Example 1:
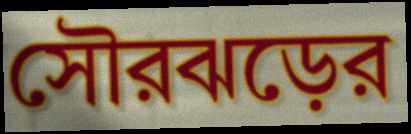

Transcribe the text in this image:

সৌরঝড়ের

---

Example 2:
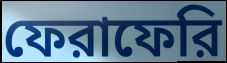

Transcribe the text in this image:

ফেরাফেরি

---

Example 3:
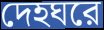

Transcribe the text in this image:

দেহঘরে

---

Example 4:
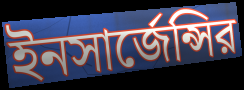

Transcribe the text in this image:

ইনসার্জেন্সির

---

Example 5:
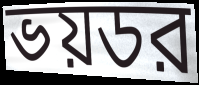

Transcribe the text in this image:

ভয়ডর